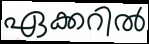
ഏക്കറിൽ